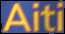
Aiti